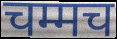
चम्मच